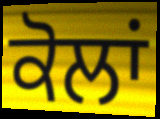
ਕੋਲਾਂ